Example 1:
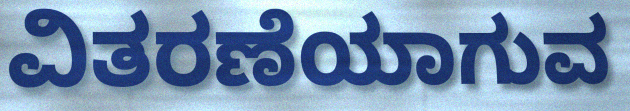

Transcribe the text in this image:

ವಿತರಣೆಯಾಗುವ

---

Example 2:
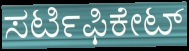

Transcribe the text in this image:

ಸರ್ಟಿಫಿಕೇಟ್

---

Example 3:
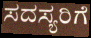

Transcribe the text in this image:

ಸದಸ್ಯರಿಗೆ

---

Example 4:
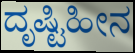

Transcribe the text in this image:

ದೃಷ್ಟಿಹೀನ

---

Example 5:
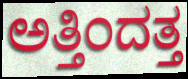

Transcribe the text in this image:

ಅತ್ತಿಂದತ್ತ